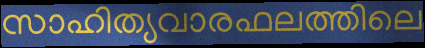
സാഹിത്യവാരഫലത്തിലെ